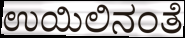
ಉಯಿಲಿನಂತೆ